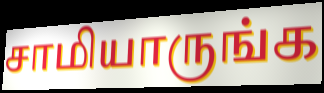
சாமியாருங்க